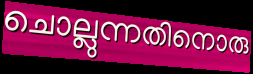
ചൊല്ലുന്നതിനൊരു